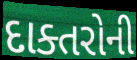
દાક્તરોની